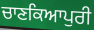
ਚਾਣਕਿਆਪੁਰੀ